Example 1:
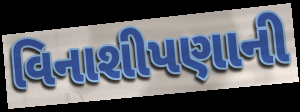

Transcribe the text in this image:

વિનાશીપણાની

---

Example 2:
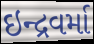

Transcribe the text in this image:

ઇન્દ્રવર્મા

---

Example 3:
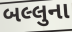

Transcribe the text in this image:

બલ્લુના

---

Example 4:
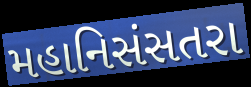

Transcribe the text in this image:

મહાનિસંસતરા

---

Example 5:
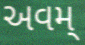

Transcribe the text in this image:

અવમ્